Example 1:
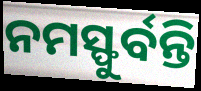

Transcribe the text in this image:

ନମସ୍ଫୁର୍ବନ୍ତି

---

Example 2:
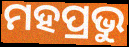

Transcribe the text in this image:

ମହପ୍ରଭୁ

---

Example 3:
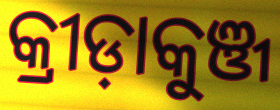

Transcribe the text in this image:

କ୍ରୀଡ଼ାକୁଞ୍ଜ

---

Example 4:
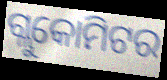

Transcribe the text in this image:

ଗ୍ଲୁକୋମିଟର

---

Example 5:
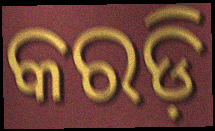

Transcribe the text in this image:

କରଡ଼ି